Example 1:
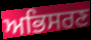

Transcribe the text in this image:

ਅਭਿਸਰਣ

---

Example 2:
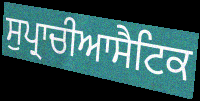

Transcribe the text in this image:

ਸੁਪ੍ਰਾਚੀਆਸੈਟਿਕ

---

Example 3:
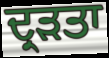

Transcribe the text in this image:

ਦ੍ਰੜਤਾ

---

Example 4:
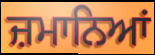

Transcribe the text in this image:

ਜ਼ਮਾਨਿਆਂ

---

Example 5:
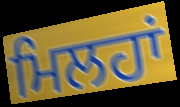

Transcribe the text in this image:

ਮਿਲਹਾਂ